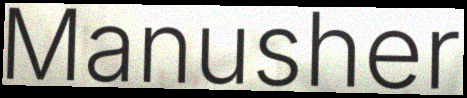
Manusher